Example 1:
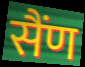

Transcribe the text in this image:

सैंण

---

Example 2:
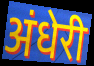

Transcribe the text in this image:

अंधेरी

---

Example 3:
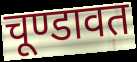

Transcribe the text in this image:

चूण्डावत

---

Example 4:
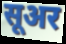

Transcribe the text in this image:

सूअर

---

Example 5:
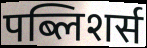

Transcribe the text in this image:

पब्लिशर्स